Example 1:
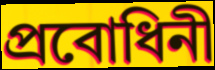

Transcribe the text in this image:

প্রবোধিনী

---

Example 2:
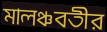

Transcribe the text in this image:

মালঞ্চবতীর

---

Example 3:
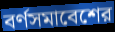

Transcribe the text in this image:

বর্ণসমাবেশের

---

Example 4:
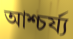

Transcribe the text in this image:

আশ্চর্য্য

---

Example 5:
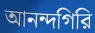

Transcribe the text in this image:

আনন্দগিরি